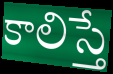
కాలిస్తే